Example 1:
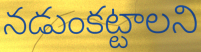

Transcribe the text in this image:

నడుంకట్టాలని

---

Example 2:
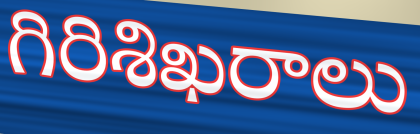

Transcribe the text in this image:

గిరిశిఖరాలు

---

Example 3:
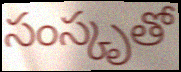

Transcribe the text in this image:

సంస్కృతో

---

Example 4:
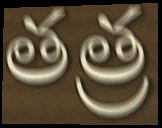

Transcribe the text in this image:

తత్ర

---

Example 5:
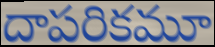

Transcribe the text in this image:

దాపరికమూ